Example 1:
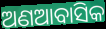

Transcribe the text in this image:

ଅଣଆବାସିକ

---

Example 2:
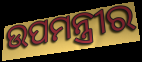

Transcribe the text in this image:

ଉପମନ୍ତ୍ରୀର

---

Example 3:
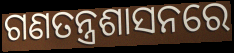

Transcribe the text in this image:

ଗଣତନ୍ତ୍ରଶାସନରେ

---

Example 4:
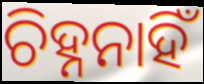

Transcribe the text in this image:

ଚିହ୍ନନାହିଁ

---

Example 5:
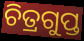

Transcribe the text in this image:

ଚିତ୍ରଗୁପ୍ତ